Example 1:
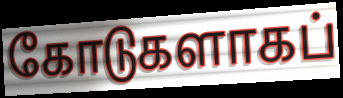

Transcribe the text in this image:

கோடுகளாகப்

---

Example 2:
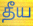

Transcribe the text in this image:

தீய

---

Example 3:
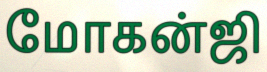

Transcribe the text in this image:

மோகன்ஜி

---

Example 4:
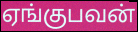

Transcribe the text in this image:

ஏங்குபவன்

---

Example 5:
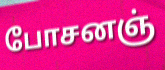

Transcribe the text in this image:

போசனஞ்